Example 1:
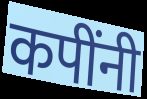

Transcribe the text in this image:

कपींनी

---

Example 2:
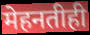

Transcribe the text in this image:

मेहनतीही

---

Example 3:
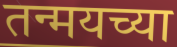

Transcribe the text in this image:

तन्मयच्या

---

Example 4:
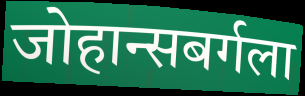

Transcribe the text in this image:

जोहान्सबर्गला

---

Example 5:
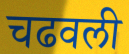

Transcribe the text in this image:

चढवली